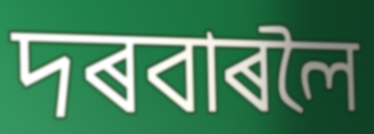
দৰবাৰলৈ